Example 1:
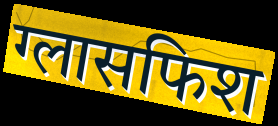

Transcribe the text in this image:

ग्लासफिश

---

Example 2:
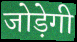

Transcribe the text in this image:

जोड़ेगी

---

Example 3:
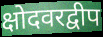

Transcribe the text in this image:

क्षोदवरद्वीप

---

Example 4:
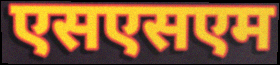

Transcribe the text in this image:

एसएसएम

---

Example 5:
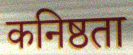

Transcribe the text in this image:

कनिष्ठता